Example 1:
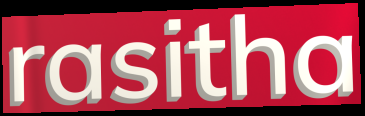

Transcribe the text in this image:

rasitha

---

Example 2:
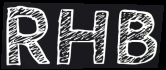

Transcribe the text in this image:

RHB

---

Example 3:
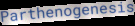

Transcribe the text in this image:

Parthenogenesis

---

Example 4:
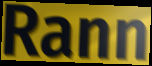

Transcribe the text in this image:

Rann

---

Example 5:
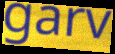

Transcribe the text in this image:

garv